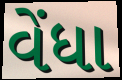
વેંધા